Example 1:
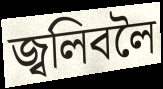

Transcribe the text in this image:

জ্বলিবলৈ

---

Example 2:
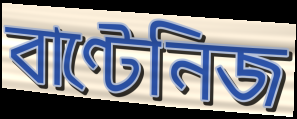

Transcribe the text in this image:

বাণ্টেনিজ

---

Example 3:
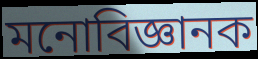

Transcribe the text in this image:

মনোবিজ্ঞানক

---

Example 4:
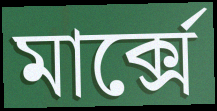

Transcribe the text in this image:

মাৰ্ক্সে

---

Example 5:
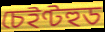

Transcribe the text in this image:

চেইণ্টহুড